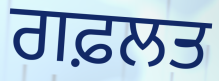
ਗਫ਼ਲਤ